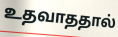
உதவாததால்